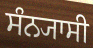
ਸੰਨ੍ਯਾਸੀ